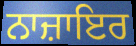
ਨਾਜ਼ਾਇਰ